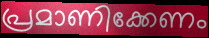
പ്രമാണിക്കേണം